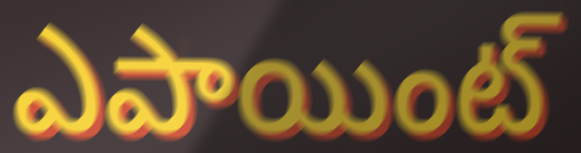
ఎపాయింట్